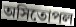
অসিতোপল